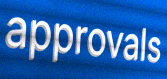
approvals